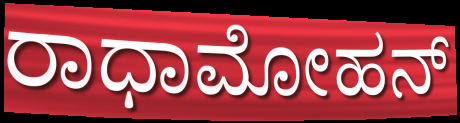
ರಾಧಾಮೋಹನ್